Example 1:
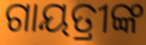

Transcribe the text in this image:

ଗାୟତ୍ରୀଙ୍କ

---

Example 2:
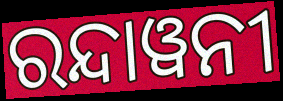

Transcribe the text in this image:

ରନ୍ଦାୱନୀ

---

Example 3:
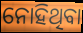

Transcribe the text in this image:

ନୋହିଥିବା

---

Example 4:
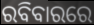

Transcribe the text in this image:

ରବିବାରରେ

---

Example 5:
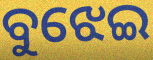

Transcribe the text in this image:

ବୁଝେଇ